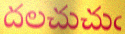
దలచుచుఁ